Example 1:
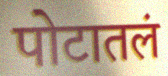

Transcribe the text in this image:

पोटातलं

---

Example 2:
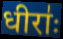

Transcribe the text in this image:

धीराः॑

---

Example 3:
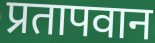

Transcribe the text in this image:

प्रतापवान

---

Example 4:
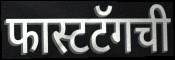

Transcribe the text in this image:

फास्टटॅगची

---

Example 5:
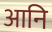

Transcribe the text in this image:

आनि